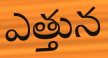
ఎత్తున